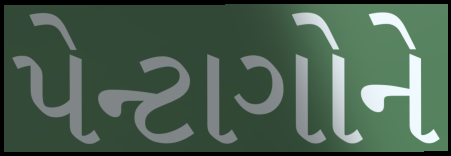
પેન્ટાગોને